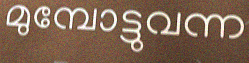
മുമ്പോട്ടുവന്ന